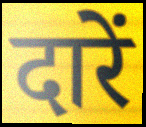
दारें